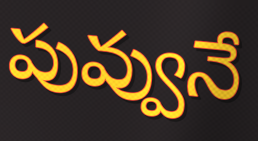
పువ్వునే